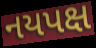
નયપક્ષ